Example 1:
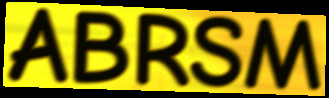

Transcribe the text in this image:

ABRSM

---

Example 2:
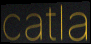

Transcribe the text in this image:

catla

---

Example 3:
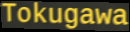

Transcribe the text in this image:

Tokugawa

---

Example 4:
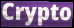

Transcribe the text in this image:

Crypto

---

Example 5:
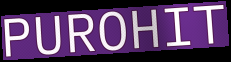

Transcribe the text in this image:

PUROHIT